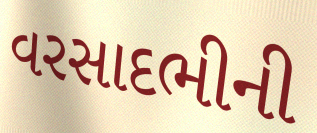
વરસાદભીની